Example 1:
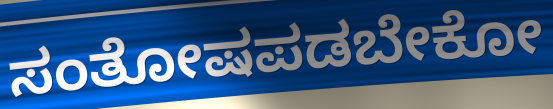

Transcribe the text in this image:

ಸಂತೋಷಪಡಬೇಕೋ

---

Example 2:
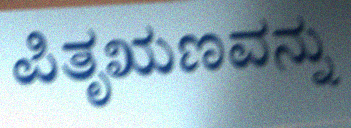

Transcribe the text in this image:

ಪಿತೃಋಣವನ್ನು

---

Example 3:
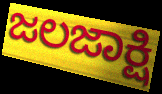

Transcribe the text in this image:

ಜಲಜಾಕ್ಷಿ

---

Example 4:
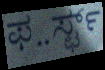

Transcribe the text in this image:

ಫ಼ರ್ಸ್ಟ್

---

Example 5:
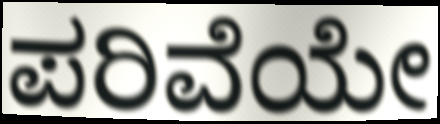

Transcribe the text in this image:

ಪರಿವೆಯೇ